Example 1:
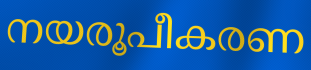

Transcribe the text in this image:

നയരൂപീകരണ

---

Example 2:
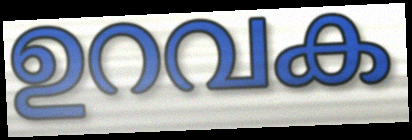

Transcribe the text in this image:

ഉറവക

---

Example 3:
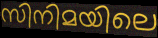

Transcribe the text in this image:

സിനിമയിലെ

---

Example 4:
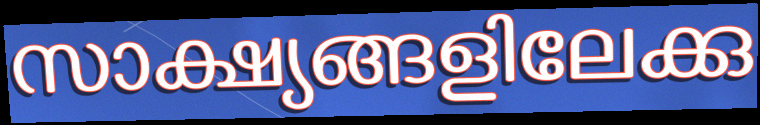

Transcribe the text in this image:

സാക്ഷ്യങ്ങളിലേക്കു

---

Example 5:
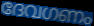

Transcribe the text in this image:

ദേവഗണം